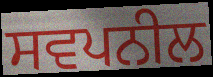
ਸਵਪਨੀਲ